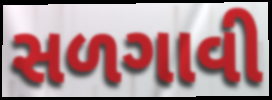
સળગાવી